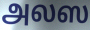
அலஸ